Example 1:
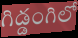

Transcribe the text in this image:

గిడ్డంగిలో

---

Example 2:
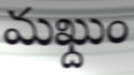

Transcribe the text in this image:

మఖ్దుం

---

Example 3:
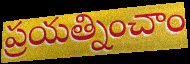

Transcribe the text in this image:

ప్రయత్నించాం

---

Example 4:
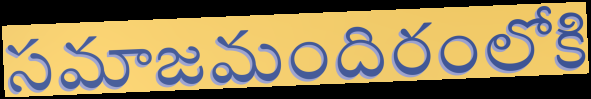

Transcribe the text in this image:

సమాజమందిరంలోకి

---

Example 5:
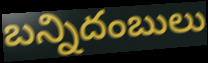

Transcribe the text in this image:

బన్నిదంబులు